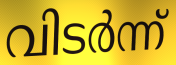
വിടർന്ന്